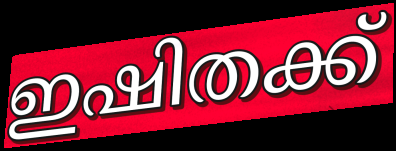
ഇഷിതക്ക്